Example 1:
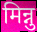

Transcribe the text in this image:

मिन्नु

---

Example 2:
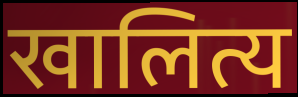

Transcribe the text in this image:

खालित्य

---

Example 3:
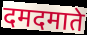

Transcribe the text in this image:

दमदमाते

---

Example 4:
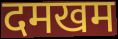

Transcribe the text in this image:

दमखम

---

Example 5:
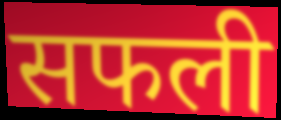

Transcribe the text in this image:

सफली